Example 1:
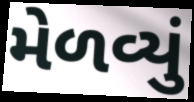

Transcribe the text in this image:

મેળવ્યું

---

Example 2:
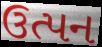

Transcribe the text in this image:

ઉત્પન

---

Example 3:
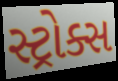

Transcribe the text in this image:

સ્ટ્રોક્સ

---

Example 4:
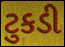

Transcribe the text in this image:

ટુકડી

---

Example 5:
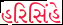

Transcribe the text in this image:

હરિસિંહે